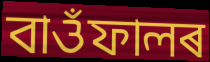
বাওঁফালৰ